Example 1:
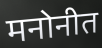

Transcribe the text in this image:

मनोनीत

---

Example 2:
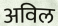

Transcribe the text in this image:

अविल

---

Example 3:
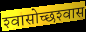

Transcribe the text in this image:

श्वासोच्छश्वास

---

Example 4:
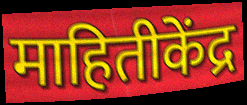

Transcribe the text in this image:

माहितीकेंद्र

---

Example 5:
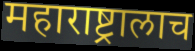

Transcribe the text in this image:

महाराष्ट्रालाच